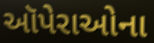
ઑપેરાઓના